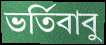
ভর্তিবাবু